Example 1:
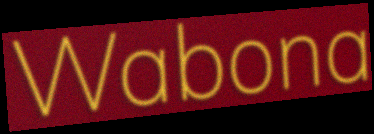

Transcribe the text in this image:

Wabona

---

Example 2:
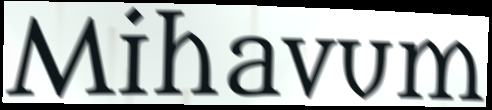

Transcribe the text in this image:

Mihavum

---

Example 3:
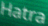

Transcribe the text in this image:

Hatra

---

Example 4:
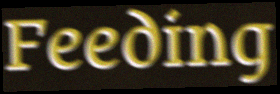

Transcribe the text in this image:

Feeding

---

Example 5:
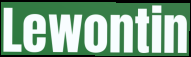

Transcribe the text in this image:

Lewontin